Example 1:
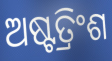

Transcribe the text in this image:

ଅଷ୍ଟତ୍ରିଂଶ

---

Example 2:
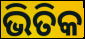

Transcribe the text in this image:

ଭିତିକ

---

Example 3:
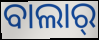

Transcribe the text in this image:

ବାଲାର୍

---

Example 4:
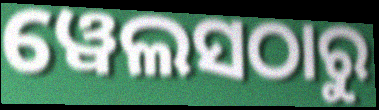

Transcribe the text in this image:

ୱେଲସଠାରୁ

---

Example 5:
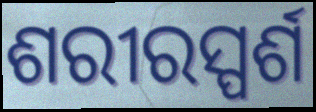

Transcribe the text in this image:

ଶରୀରସ୍ପର୍ଶ